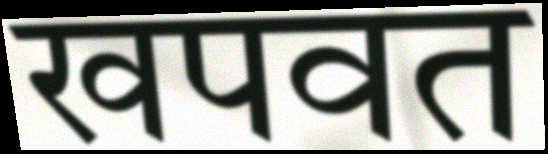
खपवत